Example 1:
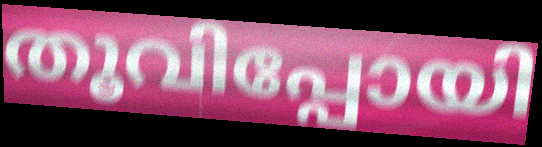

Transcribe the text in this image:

തൂവിപ്പോയി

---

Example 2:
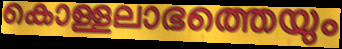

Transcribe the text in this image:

കൊള്ളലാഭത്തെയും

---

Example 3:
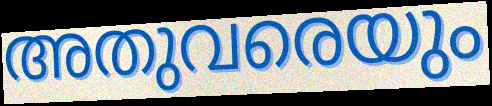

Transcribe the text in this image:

അതുവരെയും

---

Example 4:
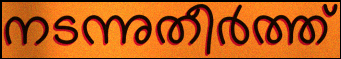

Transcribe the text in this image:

നടന്നുതീർത്ത്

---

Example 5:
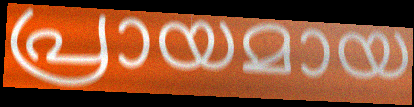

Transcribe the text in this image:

പ്രായമായ